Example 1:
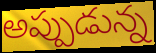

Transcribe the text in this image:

అప్పుడున్న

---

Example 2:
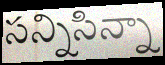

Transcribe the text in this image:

సన్నిసిన్నా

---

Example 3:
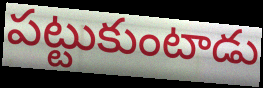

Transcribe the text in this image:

పట్టుకుంటాడు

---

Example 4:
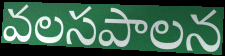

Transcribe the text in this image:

వలసపాలన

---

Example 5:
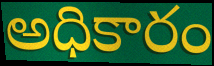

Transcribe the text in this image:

అధికారం